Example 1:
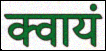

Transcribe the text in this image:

क्वायं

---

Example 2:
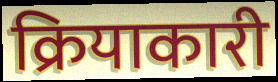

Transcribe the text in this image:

क्रियाकारी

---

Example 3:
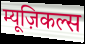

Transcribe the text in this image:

म्यूज़िकल्स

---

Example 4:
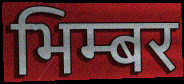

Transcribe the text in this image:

भिम्बर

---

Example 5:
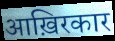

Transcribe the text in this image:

आख़िरकार